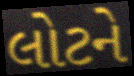
લોટને